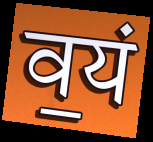
व॒यं